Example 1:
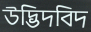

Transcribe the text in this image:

উদ্ভিদবিদ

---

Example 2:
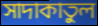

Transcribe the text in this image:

সাদাকাতুল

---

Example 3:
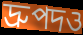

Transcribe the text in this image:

দ্রুপদও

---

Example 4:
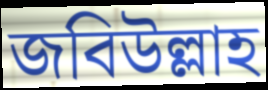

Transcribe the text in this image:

জবিউল্লাহ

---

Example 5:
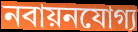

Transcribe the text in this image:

নবায়নযোগ্য